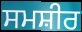
ਸਮਸ਼ੀਰ